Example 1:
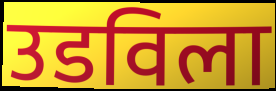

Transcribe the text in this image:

उडविला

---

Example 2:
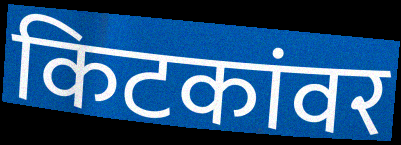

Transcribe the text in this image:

किटकांवर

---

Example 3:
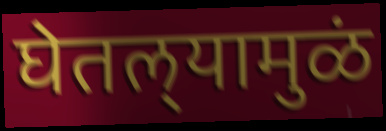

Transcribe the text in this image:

घेतल्यामुळं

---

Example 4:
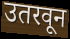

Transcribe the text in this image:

उतरवून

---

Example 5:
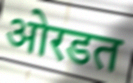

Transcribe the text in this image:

ओरडत